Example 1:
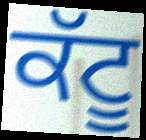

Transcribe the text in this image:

ਕੱਟੂ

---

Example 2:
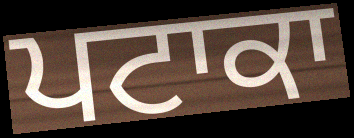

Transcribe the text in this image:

ਪਟਾਕਾ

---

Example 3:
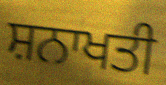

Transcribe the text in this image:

ਸ਼ਨਾਖਤੀ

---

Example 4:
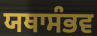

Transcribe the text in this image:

ਯਥਾਸੰਭਵ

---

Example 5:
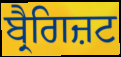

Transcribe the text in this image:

ਬ੍ਰੈਗਿਜ਼ਟ